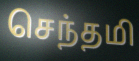
செந்தமி